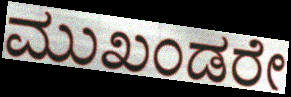
ಮುಖಂಡರೇ